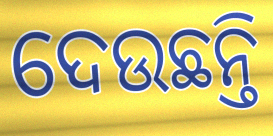
ଦେଉଛନ୍ତି